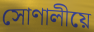
সোণালীয়ে